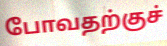
போவதற்குச்